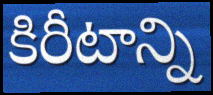
కిరీటాన్ని